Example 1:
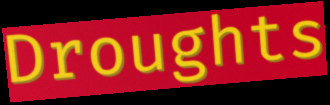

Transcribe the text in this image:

Droughts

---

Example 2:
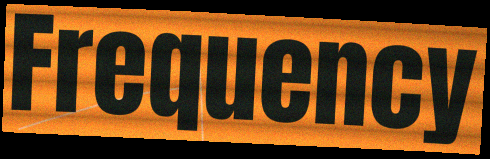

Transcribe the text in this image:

Frequency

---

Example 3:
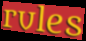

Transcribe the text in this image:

rules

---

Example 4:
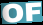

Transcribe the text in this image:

OF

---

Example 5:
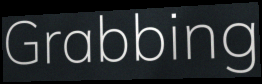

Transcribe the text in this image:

Grabbing